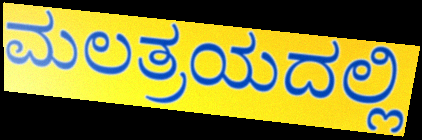
ಮಲತ್ರಯದಲ್ಲಿ